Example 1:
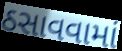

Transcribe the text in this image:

ઠસાવવામાં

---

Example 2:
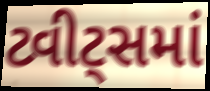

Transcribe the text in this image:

ટ્વીટ્સમાં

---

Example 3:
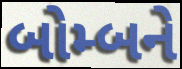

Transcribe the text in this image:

બોમ્બને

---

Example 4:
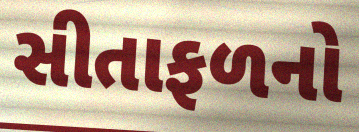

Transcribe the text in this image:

સીતાફળનો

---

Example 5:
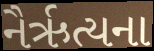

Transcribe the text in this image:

નૈર્ઋત્યના